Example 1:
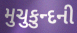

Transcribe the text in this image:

મુચુકુન્દની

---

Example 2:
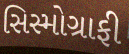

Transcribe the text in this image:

સિસ્મોગ્રાફી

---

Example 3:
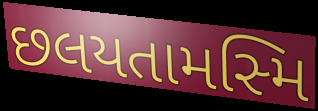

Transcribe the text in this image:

છલયતામસ્મિ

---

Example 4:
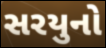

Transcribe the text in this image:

સરયુનો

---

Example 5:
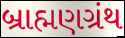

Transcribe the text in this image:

બ્રાહ્મણગ્રંથ